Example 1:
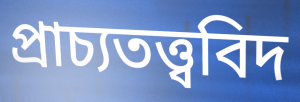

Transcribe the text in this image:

প্রাচ্যতত্ত্ববিদ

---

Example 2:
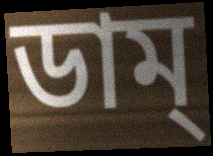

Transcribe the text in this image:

ডাম্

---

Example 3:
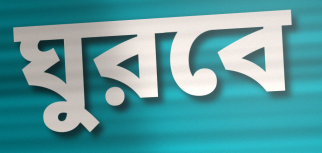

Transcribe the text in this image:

ঘুরবে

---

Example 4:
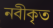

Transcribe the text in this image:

নবীকৃত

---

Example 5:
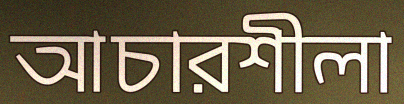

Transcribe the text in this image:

আচারশীলা